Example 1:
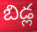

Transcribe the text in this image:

బిడ్ల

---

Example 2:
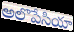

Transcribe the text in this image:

అలొపేసియా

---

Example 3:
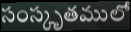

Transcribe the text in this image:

సంస్కృతములో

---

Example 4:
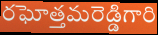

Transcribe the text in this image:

రఘోత్తమరెడ్డిగారి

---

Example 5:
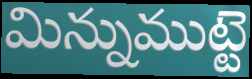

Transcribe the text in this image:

మిన్నుముట్టె